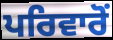
ਪਰਿਵਾਰੋਂ